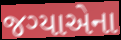
જગ્યાએના